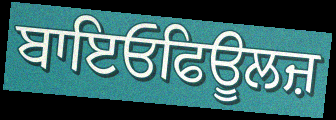
ਬਾਇਓਫਿਊਲਜ਼